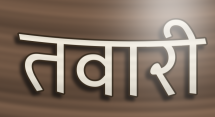
तवारी